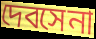
দেবসেনা